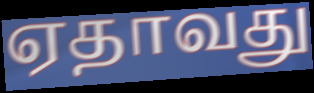
ஏதாவது